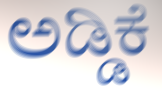
ಅಡ್ಡಿಕೆ